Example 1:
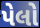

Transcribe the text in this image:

પેલો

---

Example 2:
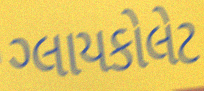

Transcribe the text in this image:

ગ્લાયકોલેટ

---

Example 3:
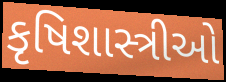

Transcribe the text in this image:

કૃષિશાસ્ત્રીઓ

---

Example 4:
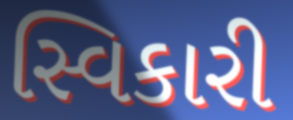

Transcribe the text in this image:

સ્વિકારી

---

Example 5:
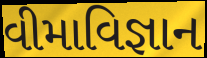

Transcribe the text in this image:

વીમાવિજ્ઞાન